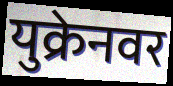
युक्रेनवर